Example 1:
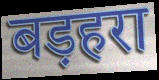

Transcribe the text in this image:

बड़हरा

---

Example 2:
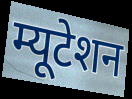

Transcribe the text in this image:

म्यूटेशन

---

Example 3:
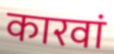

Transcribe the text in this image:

कारवां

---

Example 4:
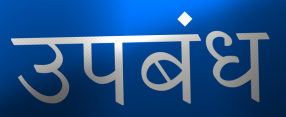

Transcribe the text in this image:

उपबंध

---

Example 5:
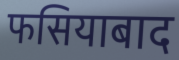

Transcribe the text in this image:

फसियाबाद